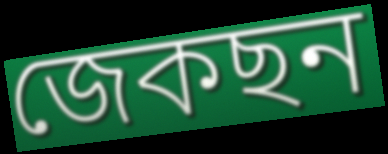
জেকছন